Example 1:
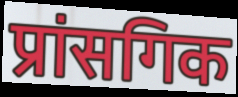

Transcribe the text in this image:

प्रांसगिक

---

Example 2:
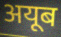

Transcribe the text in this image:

अयूब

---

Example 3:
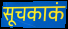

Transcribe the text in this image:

सूचकाकं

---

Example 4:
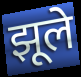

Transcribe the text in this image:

झूले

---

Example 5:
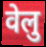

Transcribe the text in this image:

वेलु